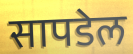
सापडेल